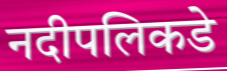
नदीपलिकडे